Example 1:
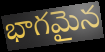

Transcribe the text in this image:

భాగమైన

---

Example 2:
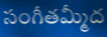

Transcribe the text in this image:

సంగీతమ్మీద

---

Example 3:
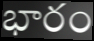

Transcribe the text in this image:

భారం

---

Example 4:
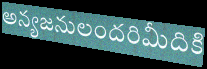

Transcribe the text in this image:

అన్యజనులందరిమీదికి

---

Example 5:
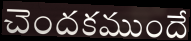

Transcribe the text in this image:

చెందకముందే